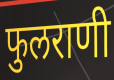
फुलराणी